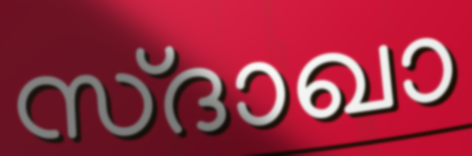
സ്ദാഖാ